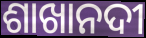
ଶାଖାନଦୀ